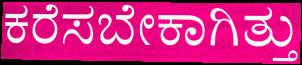
ಕರೆಸಬೇಕಾಗಿತ್ತು